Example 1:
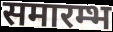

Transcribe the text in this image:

समारम्भ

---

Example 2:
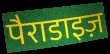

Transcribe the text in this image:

पैराडाइज़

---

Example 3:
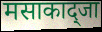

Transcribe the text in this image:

मसाकाद्जा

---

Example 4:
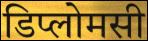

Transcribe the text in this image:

डिप्लोमसी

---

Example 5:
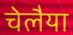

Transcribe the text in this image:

चेलैया